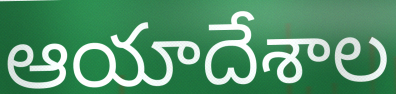
ఆయాదేశాల